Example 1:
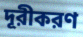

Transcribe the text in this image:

দূরীকরণ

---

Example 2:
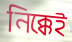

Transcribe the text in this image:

নিক্কেই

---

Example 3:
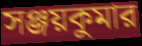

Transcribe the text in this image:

সঞ্জয়কুমার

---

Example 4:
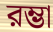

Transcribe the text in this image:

রম্ভা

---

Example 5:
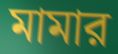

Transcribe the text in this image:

মামার